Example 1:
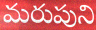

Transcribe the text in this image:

మరుపుని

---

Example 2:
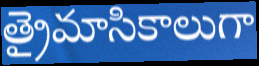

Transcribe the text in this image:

త్రైమాసికాలుగా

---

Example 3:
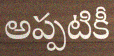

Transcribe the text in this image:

అప్పటికీ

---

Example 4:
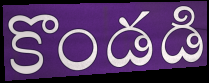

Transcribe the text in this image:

కొండడి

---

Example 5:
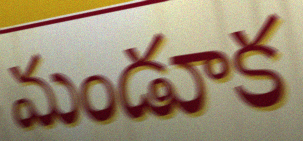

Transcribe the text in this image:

మండూక